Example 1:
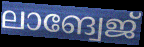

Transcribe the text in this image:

ലാങ്വേജ്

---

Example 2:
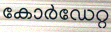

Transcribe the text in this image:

കോർഡേറ്റ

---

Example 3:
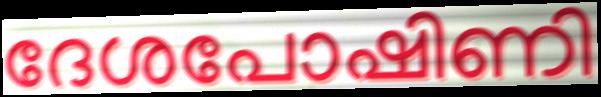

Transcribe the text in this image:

ദേശപോഷിണി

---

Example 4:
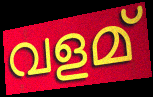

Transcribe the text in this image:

വളമ്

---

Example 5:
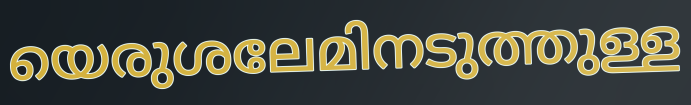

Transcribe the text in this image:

യെരുശലേമിനടുത്തുള്ള